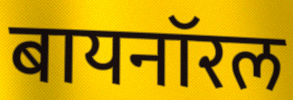
बायनॉरल